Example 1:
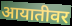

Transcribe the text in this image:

आयातीवर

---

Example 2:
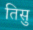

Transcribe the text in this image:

तिसु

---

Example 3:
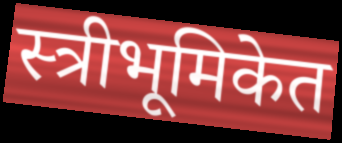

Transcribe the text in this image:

स्त्रीभूमिकेत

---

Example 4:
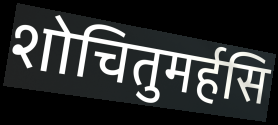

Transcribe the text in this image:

शोचितुमर्हसि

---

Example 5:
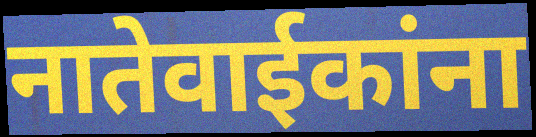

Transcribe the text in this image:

नातेवाईकांना